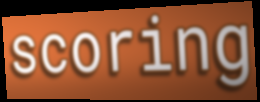
scoring